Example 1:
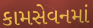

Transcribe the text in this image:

કામસેવનમાં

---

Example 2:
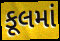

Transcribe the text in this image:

કૂલમાં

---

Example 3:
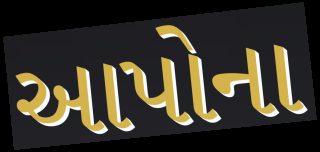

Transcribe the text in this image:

આપોના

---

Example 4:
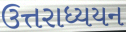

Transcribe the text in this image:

ઉત્તરાધ્યયન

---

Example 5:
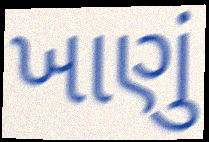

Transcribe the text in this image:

ખાણું